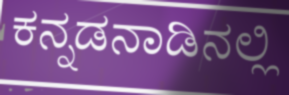
ಕನ್ನಡನಾಡಿನಲ್ಲಿ